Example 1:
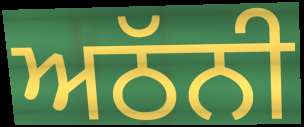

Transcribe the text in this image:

ਅਠੱਨੀ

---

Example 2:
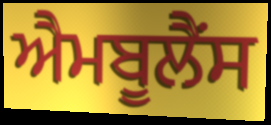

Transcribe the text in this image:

ਐਮਬੂਲੈਂਸ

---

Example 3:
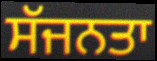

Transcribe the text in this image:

ਸੱਜਨਤਾ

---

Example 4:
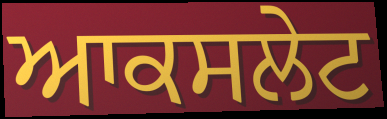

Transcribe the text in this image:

ਆਕਸਲੇਟ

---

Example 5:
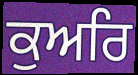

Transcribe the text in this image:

ਕੁਅਰਿ